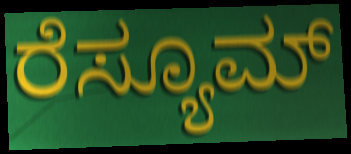
ರೆಸ್ಯೂಮ್